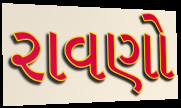
રાવણો